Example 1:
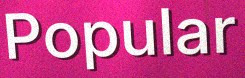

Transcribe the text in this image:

Popular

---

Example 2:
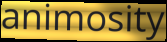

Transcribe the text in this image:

animosity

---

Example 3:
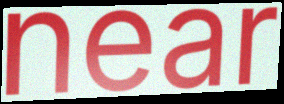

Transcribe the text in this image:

near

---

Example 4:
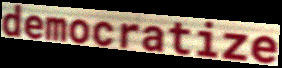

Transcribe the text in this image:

democratize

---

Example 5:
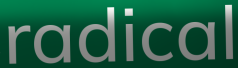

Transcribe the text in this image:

radical